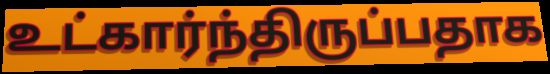
உட்கார்ந்திருப்பதாக